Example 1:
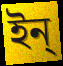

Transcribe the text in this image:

ইন্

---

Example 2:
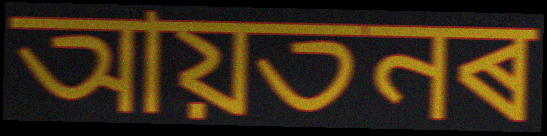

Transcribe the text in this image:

আয়তনৰ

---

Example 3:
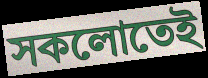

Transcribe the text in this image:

সকলোতেই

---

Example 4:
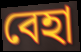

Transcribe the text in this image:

বেহা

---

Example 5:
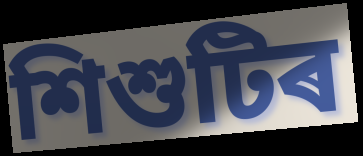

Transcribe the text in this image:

শিশুটিৰ